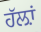
ਹੱਲ਼ਾਂ